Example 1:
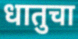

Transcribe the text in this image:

धातुचा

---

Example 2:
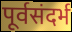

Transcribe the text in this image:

पूर्वसंदर्भ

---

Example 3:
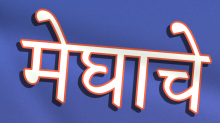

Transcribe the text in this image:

मेघाचे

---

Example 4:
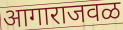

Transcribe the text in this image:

आगाराजवळ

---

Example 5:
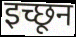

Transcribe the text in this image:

इच्छून